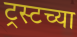
ट्रस्टच्या